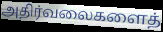
அதிர்வலைகளைத்